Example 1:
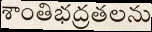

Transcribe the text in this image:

శాంతిభద్రతలను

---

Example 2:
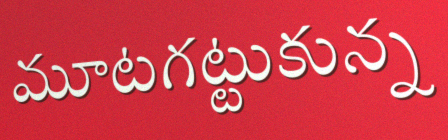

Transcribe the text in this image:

మూటగట్టుకున్న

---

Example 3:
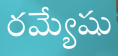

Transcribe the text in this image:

రమ్యేషు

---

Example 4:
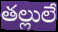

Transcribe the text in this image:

తల్లులే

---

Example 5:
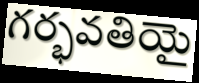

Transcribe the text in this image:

గర్భవతియై